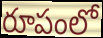
రూపంలో